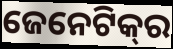
ଜେନେଟିକ୍‌ର